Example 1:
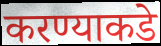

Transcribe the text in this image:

करण्याकडे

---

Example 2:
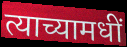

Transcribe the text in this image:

त्याच्यामधीं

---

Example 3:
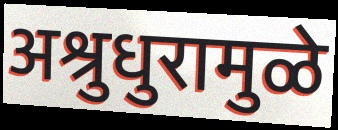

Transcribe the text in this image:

अश्रुधुरामुळे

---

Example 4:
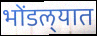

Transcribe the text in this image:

भोंडल्यात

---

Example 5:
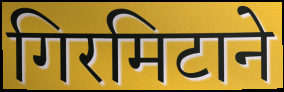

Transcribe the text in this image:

गिरमिटाने